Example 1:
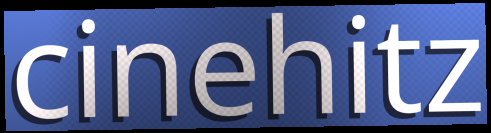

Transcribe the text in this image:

cinehitz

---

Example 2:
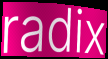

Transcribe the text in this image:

radix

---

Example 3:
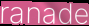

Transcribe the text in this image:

ranade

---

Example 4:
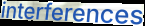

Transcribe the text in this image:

interferences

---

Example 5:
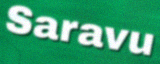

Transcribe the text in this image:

Saravu